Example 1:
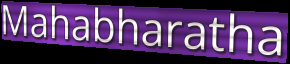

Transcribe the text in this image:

Mahabharatha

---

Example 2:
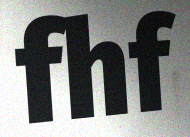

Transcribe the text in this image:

fhf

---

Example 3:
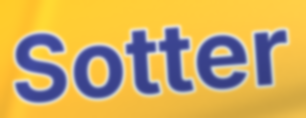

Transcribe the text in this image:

Sotter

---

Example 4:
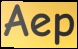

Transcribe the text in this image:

Aep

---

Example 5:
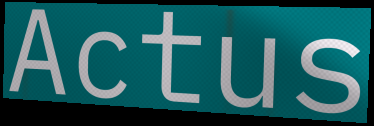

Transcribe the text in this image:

Actus